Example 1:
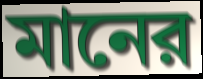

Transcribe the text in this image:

মানের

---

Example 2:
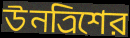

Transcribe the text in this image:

উনত্রিশের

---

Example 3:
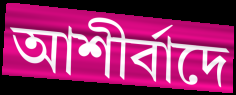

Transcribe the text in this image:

আশীর্বাদে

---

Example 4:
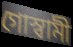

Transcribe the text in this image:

গোস্বামী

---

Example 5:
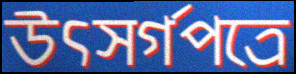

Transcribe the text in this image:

উৎসর্গপত্রে